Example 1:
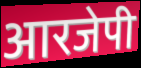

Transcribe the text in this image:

आरजेपी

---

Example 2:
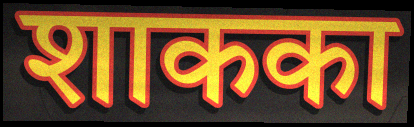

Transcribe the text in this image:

शाकका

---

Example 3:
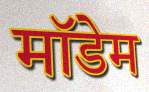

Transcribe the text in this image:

मॉडेम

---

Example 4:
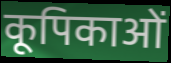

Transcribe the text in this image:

कूपिकाओं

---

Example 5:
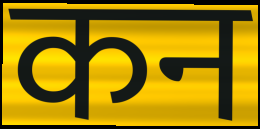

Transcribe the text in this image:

कन